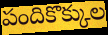
పందికొక్కుల